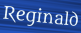
Reginald